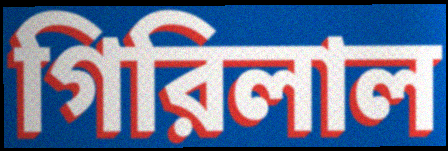
গিরিলাল